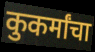
कुकर्मांचा